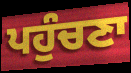
ਪਹੁੰਚਣਾ